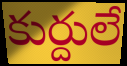
కుర్దులే